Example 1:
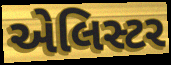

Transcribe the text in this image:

એલિસ્ટર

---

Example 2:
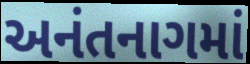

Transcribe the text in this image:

અનંતનાગમાં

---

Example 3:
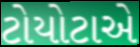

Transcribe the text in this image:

ટોયોટાએ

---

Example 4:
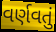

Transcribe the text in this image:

વર્ણવતું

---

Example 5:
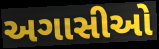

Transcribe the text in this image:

અગાસીઓ